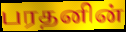
பரதனின்